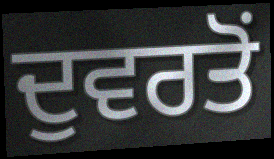
ਦੁਵਰਤੋਂ